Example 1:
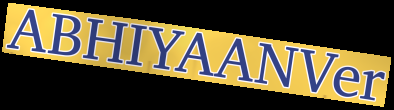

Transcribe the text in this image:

ABHIYAANVer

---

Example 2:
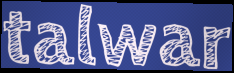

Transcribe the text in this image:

talwar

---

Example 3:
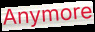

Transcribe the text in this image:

Anymore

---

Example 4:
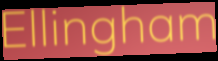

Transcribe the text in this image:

Ellingham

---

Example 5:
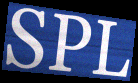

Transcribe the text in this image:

SPL